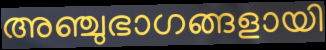
അഞ്ചുഭാഗങ്ങളായി